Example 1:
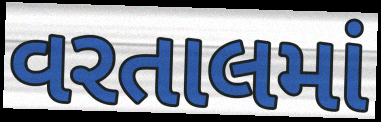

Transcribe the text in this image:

વરતાલમાં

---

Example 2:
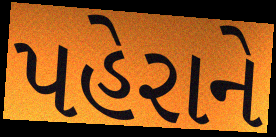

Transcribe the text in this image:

પહેરાને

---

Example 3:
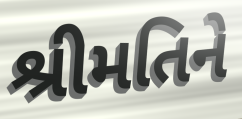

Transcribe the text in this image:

શ્રીમતિને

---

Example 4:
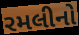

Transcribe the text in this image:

રમલીનો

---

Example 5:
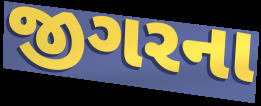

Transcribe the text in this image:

જીગરના